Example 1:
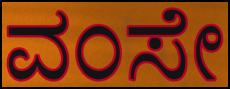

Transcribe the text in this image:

ವಂಸೇ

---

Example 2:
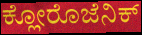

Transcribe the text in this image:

ಕ್ಲೋರೊಜೆನಿಕ್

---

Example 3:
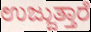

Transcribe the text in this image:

ಉಜ್ಜುತ್ತಾರೆ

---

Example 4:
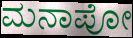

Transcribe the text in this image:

ಮನಾಪೋ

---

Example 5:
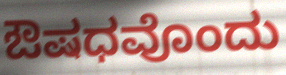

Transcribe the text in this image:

ಔಷಧವೊಂದು